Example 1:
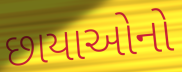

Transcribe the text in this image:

છાયાઓનો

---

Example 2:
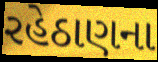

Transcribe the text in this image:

રહેઠાણના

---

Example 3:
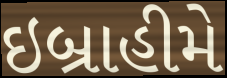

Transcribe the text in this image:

ઇબ્રાહીમે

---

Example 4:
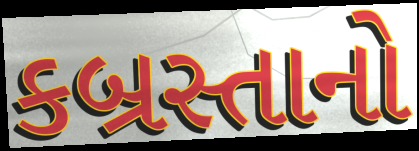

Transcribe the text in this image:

કબ્રસ્તાનો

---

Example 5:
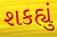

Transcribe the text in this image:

શકહ્યું